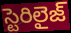
స్టెరిలైజ్